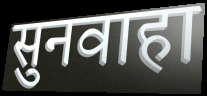
सुनवाहा